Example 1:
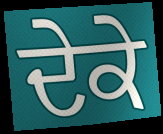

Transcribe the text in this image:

ਦੇਕੇ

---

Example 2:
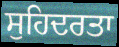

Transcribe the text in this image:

ਸੁਹਿਦਰਤਾ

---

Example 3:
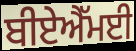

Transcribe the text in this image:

ਬੀਏਐੱਮਈ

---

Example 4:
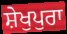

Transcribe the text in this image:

ਸ਼ੇਖੁਪੁਰਾ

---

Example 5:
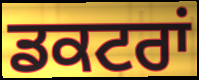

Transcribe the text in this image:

ਡਕਟਰਾਂ